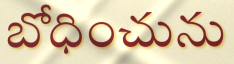
బోధించును